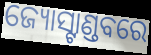
ଜ୍ୟୋସ୍ଟାଣ୍ଡବରେ